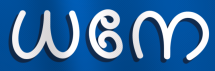
ധനേ